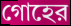
গোহের